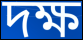
দক্ষ